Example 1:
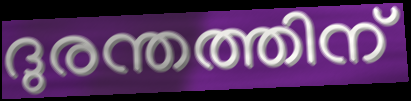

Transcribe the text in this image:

ദുരന്തത്തിന്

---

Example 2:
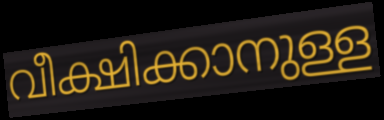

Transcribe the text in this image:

വീക്ഷിക്കാനുള്ള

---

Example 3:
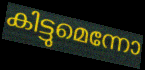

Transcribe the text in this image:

കിട്ടുമെന്നോ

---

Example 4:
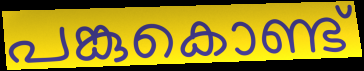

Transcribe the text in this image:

പങ്കുകൊണ്ട്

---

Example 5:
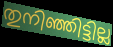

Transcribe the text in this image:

തുനിഞ്ഞിട്ടില്ല